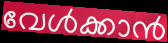
വേൾക്കാൻ